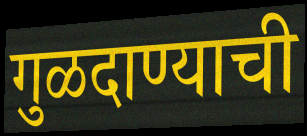
गुळदाण्याची